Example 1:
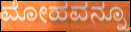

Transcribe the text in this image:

ಮೋಹವನ್ನೂ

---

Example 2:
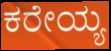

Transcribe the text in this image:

ಕರೇಯ್ಯ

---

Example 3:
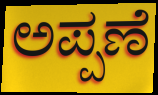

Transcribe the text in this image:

ಅಪ್ಪಣೆ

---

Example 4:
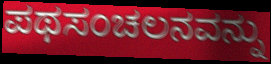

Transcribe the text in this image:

ಪಥಸಂಚಲನವನ್ನು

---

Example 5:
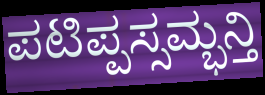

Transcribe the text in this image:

ಪಟಿಪ್ಪಸ್ಸಮ್ಭನ್ತಿ